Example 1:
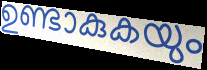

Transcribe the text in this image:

ഉണ്ടാകുകയും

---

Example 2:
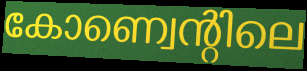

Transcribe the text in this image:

കോണ്വെന്റിലെ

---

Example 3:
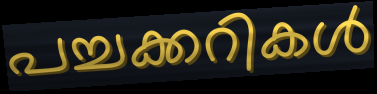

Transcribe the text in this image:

പച്ചക്കറികൾ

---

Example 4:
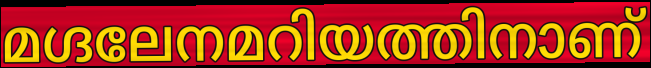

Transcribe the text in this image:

മഗ്ദലേനമറിയത്തിനാണ്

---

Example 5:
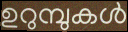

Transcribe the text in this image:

ഉറുമ്പുകൾ